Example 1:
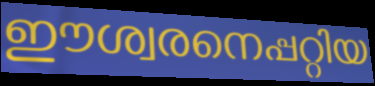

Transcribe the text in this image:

ഈശ്വരനെപ്പറ്റിയ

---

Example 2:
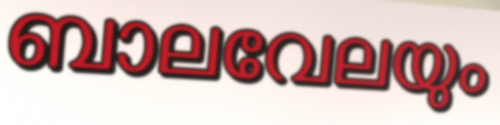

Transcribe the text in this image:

ബാലവേലയും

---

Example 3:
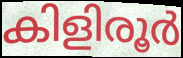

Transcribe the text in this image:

കിളിരൂർ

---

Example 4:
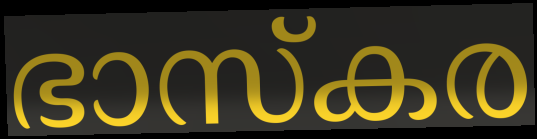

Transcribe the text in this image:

ഭാസ്കര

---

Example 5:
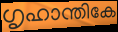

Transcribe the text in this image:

ഗൃഹാന്തികേ